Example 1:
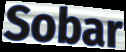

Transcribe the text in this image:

Sobar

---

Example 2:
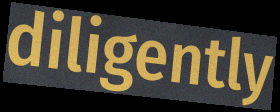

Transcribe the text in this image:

diligently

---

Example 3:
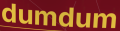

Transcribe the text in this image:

dumdum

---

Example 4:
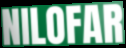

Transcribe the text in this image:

NILOFAR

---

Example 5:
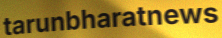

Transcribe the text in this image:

tarunbharatnews